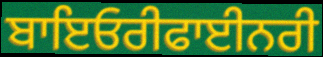
ਬਾਇਓਰੀਫਾਈਨਰੀ